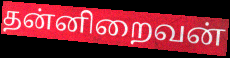
தன்னிறைவன்